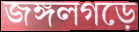
জঙ্গলগড়ে